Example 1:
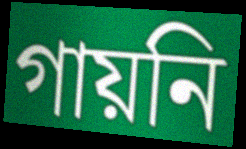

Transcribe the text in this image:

গায়নি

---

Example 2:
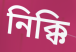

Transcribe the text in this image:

নিক্কি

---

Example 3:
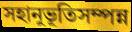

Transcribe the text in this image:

সহানুভূতিসম্পন্ন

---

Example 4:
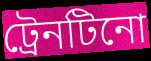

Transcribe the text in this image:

ট্রেনটিনো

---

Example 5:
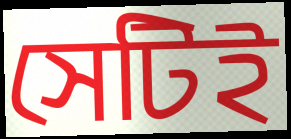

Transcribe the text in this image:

সেটিই